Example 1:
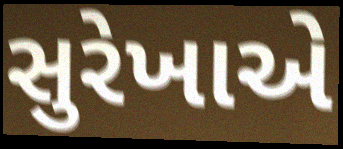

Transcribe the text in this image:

સુરેખાએ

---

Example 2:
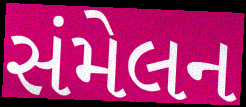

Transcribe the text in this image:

સંમેલન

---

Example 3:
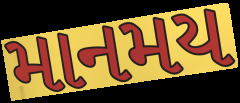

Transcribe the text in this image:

માનમય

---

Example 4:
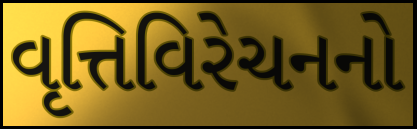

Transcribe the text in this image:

વૃત્તિવિરેચનનો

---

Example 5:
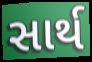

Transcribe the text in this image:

સાર્થ